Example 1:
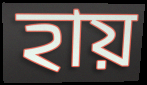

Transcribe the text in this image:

হায়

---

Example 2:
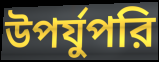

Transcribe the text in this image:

উপর্যুপরি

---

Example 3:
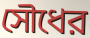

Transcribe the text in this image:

সৌধের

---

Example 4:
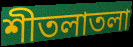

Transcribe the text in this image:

শীতলাতলা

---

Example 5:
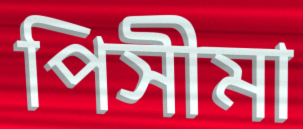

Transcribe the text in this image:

পিসীমা